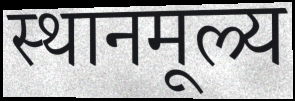
स्थानमूल्य